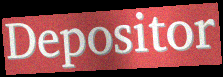
Depositor